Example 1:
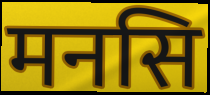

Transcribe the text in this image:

मनसि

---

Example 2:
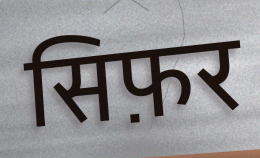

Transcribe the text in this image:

सिफ़र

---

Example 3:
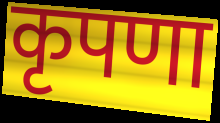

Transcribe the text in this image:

कृपणा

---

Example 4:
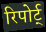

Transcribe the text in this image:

रिपोर्ट्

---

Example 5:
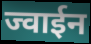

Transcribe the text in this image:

ज्वाईन